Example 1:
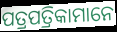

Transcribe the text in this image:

ପତ୍ରପତ୍ରିକାମାନେ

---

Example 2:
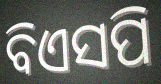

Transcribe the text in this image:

ବିଏସପି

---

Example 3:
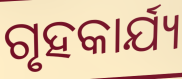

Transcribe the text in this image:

ଗୃହକାର୍ଯ୍ୟ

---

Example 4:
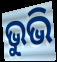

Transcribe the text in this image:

ଭୁଭି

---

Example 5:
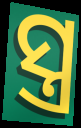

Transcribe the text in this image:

ସ୍ତ୍ର